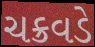
ચક્રવડે